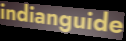
indianguide